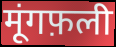
मूंगफ़ली